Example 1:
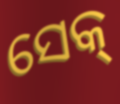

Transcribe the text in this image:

ସେକ୍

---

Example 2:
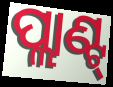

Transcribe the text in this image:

ପ୍ଲାଣ୍ଟ୍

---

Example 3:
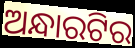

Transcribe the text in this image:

ଅନ୍ଧାରଟିର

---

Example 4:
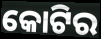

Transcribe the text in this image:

କୋଟିର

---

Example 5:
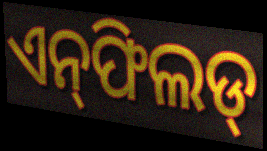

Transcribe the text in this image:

ଏନ୍‌ଫିଲଡ୍